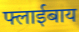
फ्लाईबाय